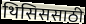
थिसिससाठी